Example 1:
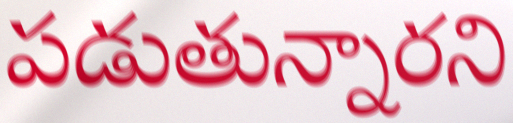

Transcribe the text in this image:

పడుతున్నారని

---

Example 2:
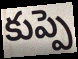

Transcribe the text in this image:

కుప్పె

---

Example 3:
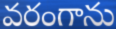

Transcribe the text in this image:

వరంగాను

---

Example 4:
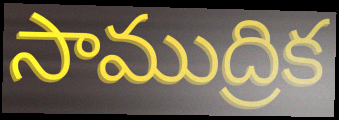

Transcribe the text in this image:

సాముద్రిక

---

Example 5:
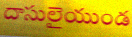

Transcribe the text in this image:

దాసులైయుండ